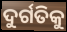
ଦୁର୍ଗତିକୁ